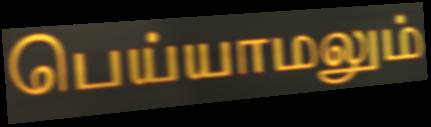
பெய்யாமலும்